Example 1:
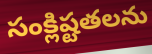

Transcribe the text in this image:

సంక్లిష్టతలను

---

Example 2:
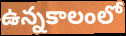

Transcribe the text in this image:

ఉన్నకాలంలో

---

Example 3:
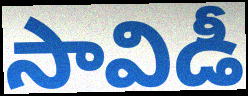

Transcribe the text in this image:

సావిడీ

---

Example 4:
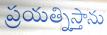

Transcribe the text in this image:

ప్రయత్నిస్తాను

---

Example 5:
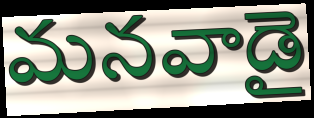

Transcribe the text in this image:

మనవాడై